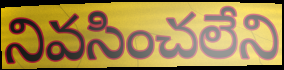
నివసించలేని